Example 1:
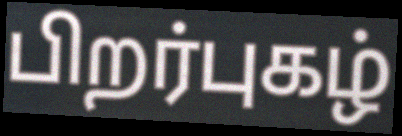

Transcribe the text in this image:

பிறர்புகழ்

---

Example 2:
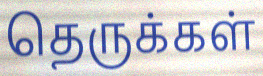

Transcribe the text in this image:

தெருக்கள்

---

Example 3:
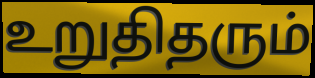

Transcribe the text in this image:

உறுதிதரும்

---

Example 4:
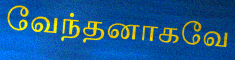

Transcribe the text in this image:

வேந்தனாகவே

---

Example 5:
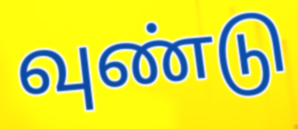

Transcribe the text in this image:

வுண்டு